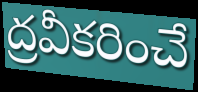
ద్రవీకరించే